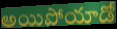
అయిపోయాడో